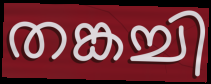
തങ്കച്ചി